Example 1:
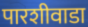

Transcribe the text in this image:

पारशीवाडा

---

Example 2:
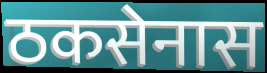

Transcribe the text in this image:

ठकसेनास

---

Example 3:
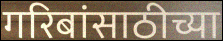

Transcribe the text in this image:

गरिबांसाठीच्या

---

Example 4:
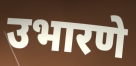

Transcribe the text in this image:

उभारणे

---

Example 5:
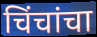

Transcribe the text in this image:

चिंचांचा